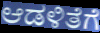
ಆಡಳಿತೆಗೆ